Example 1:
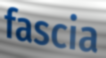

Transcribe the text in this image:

fascia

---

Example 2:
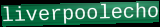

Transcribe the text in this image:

liverpoolecho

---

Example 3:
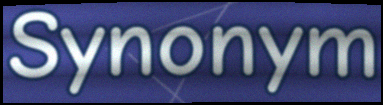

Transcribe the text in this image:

Synonym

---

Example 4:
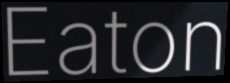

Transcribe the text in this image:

Eaton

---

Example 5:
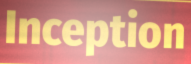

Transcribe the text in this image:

Inception